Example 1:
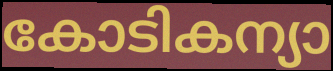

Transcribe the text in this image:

കോടികന്യാ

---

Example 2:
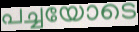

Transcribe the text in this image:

പച്ചയോടെ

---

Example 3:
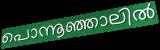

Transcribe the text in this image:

പൊന്നൂഞ്ഞാലിൽ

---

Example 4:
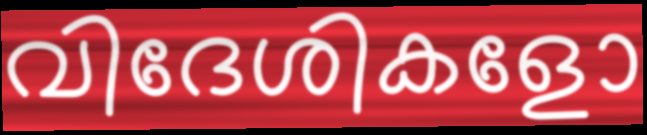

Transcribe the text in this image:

വിദേശികളോ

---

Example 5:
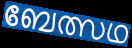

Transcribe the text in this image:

ബേത്സഥ